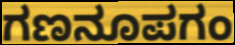
ಗಣನೂಪಗಂ